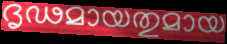
ദൃഢമായതുമായ